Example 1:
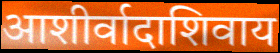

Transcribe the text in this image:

आशीर्वादाशिवाय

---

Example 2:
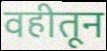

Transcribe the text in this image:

वहीतून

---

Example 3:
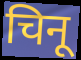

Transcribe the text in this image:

चिनू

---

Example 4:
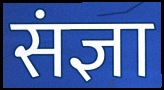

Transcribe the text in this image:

संज्ञा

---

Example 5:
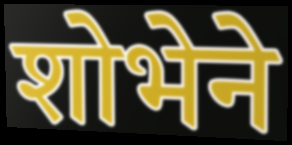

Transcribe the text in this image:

शोभेने